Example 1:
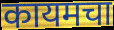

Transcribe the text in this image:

कायमचा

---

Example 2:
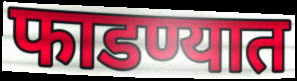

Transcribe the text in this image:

फाडण्यात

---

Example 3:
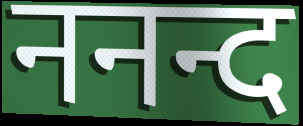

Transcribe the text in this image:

ननन्द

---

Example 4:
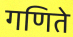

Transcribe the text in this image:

गणिते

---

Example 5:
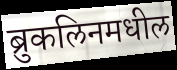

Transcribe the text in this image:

ब्रुकलिनमधील